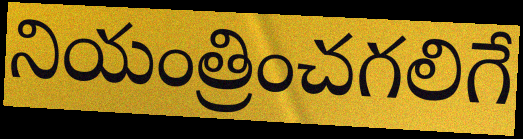
నియంత్రించగలిగే